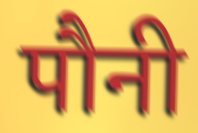
पौनी